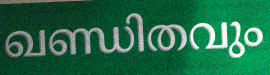
ഖണ്ഡിതവും